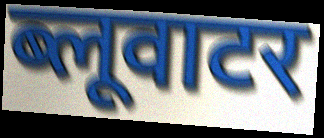
ब्लूवाटर